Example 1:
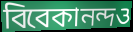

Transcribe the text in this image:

বিবেকানন্দও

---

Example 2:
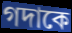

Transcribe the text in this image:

গদাকে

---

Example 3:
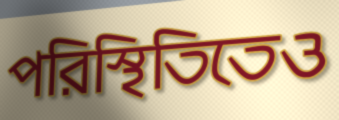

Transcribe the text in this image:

পরিস্থিতিতেও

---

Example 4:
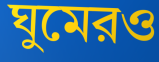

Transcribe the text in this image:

ঘুমেরও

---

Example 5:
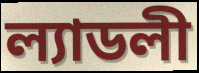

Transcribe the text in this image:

ল্যাডলী